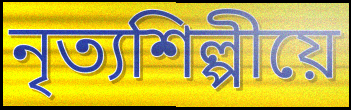
নৃত্যশিল্পীয়ে